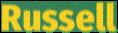
Russell